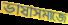
ভাষাসমাজে